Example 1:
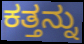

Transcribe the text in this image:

ಕತ್ತನ್ನು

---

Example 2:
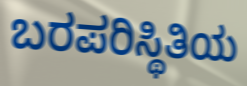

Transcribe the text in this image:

ಬರಪರಿಸ್ಥಿತಿಯ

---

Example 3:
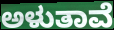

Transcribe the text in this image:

ಅಳುತಾವೆ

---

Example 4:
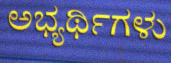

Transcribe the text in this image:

ಅಭ್ಯರ್ಥಿಗಳು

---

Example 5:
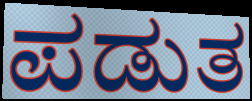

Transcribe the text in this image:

ಪಡುತ